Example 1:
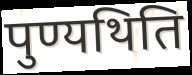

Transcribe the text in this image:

पुण्यथिति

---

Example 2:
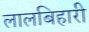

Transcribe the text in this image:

लालबिहारी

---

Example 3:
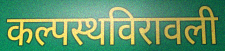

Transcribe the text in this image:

कल्पस्थविरावली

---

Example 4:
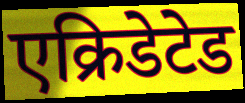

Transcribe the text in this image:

एक्रिडेटेड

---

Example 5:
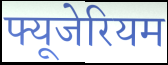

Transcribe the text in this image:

फ्यूजेरियम